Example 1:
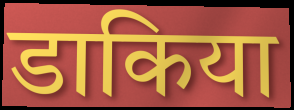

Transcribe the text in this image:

डाकिया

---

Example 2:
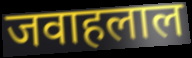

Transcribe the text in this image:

जवाहलाल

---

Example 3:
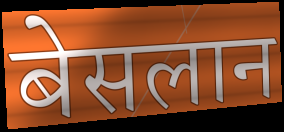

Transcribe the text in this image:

बेसलान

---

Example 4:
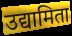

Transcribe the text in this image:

उद्यामिता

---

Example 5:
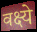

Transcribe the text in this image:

वक्ष्ये